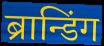
ब्रान्डिंग